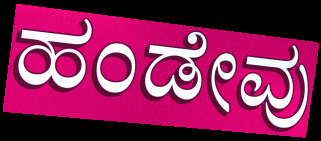
ಹಂಡೇವು